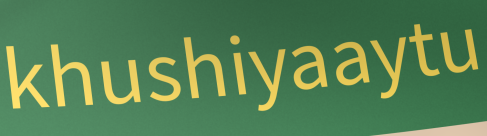
khushiyaaytu